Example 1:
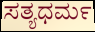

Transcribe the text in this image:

ಸತ್ಯಧರ್ಮ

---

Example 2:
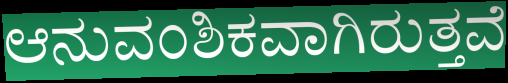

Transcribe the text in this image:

ಆನುವಂಶಿಕವಾಗಿರುತ್ತವೆ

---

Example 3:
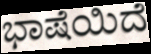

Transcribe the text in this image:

ಭಾಷೆಯಿದೆ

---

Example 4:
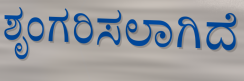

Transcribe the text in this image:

ಶೃಂಗರಿಸಲಾಗಿದೆ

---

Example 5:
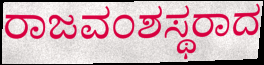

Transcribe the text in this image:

ರಾಜವಂಶಸ್ಥರಾದ